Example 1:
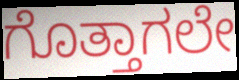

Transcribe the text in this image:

ಗೊತ್ತಾಗಲೇ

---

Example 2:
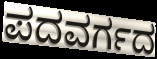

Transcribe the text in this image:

ಪದವರ್ಗದ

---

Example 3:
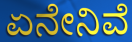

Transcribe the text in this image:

ಏನೇನಿವೆ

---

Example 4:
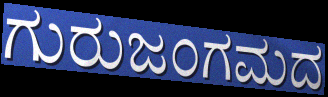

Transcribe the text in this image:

ಗುರುಜಂಗಮದ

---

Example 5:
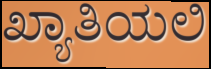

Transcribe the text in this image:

ಖ್ಯಾತಿಯಲಿ